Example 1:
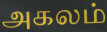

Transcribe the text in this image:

அகலம்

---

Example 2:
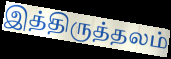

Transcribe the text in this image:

இத்திருத்தலம்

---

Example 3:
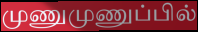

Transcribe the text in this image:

முணுமுணுப்பில்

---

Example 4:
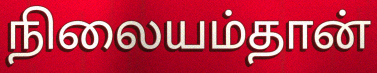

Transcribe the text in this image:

நிலையம்தான்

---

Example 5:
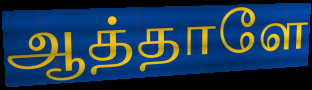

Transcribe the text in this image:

ஆத்தாளே